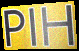
PIH